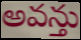
అవన్తు